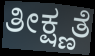
ತೀಕ್ಷ್ಣತೆ